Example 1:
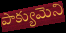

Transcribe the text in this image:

పాక్యుమెని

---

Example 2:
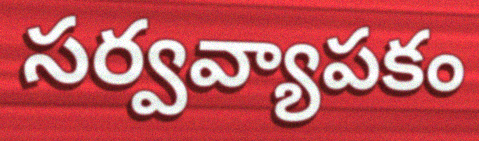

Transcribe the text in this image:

సర్వవ్యాపకం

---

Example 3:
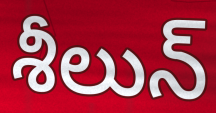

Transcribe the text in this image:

శీలున్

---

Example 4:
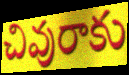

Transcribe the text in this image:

చివురాకు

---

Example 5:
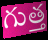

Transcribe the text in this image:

గుత్త